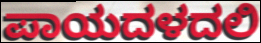
ಪಾಯದಳದಲಿ